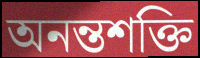
অনন্তশক্তি